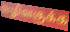
வழிவகுக்க